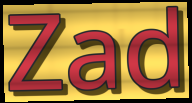
Zad